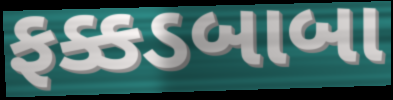
ફક્કડબાબા